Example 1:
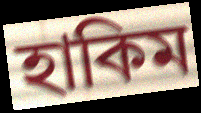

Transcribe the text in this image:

হাকিম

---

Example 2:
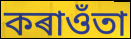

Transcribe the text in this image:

কৰাওঁতা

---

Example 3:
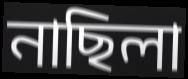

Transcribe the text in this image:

নাছিলা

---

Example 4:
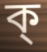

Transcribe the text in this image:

ক্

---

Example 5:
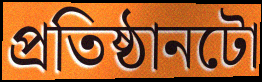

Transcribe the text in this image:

প্ৰতিষ্ঠানটো